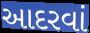
આદરવાં